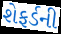
શેફર્ડની